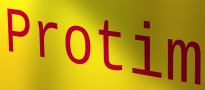
Protim